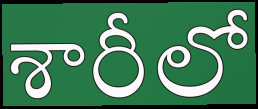
శారీలో